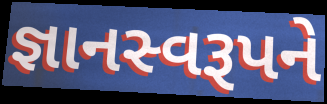
જ્ઞાનસ્વરૂપને